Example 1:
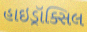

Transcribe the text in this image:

હાઇડ્રૉક્સિલ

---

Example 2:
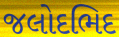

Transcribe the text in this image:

જલોદભિદ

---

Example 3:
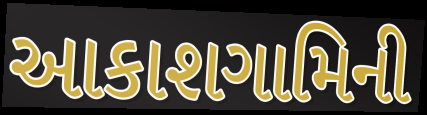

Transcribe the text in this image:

આકાશગામિની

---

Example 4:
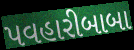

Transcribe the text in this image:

પવહારીબાબા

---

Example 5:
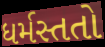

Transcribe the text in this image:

ધર્મસ્તતો